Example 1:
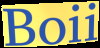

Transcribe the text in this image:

Boii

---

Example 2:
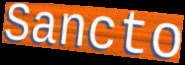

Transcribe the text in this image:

Sancto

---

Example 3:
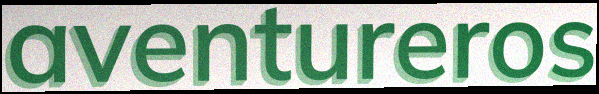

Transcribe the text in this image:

aventureros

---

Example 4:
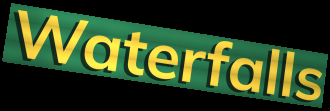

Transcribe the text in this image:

Waterfalls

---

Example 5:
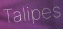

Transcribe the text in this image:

Talipes